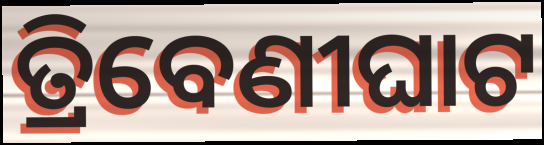
ତ୍ରିବେଣୀଘାଟ